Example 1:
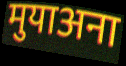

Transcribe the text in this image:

मुयाअना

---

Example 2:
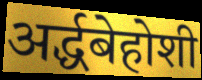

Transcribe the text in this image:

अर्द्धबेहोशी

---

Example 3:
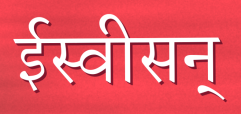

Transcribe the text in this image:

ईस्वीसन्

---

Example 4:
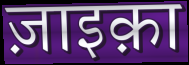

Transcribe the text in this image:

ज़ाइक़ा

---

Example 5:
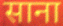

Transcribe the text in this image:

साना